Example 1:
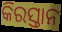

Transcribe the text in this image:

କିରସ୍ତାନ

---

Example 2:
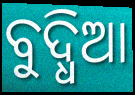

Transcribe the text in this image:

ବୁଦ୍ଧିଆ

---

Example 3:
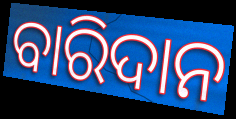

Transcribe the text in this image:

ବାରିଦାନ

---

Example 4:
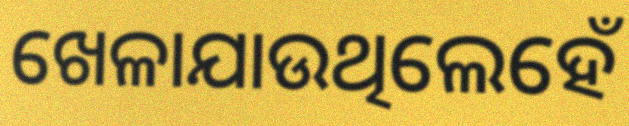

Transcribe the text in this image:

ଖେଳାଯାଉଥିଲେହେଁ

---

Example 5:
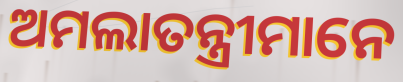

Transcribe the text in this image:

ଅମଲାତନ୍ତ୍ରୀମାନେ